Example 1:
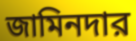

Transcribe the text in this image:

জামিনদার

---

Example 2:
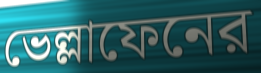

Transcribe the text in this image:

ভেল্লাফেনের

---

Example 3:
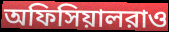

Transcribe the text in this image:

অফিসিয়ালরাও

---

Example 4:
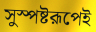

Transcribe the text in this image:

সুস্পষ্টরূপেই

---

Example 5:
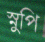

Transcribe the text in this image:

স্নুপি